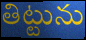
తిట్టును